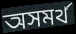
অসমৰ্থ